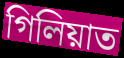
গিলিয়াত